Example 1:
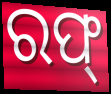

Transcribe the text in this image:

ରଫ୍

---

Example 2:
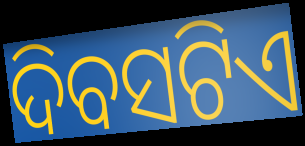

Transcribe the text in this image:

ଦିବସଟିଏ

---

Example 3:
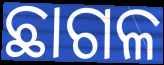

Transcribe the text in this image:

ଛାଗଳ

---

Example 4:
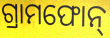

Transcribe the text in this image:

ଗ୍ରାମଫୋନ୍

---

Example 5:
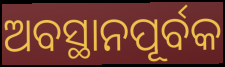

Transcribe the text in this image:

ଅବସ୍ଥାନପୂର୍ବକ